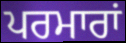
ਪਰਮਾਰਾਂ